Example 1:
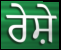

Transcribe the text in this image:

ਰੇਸ਼ੇ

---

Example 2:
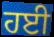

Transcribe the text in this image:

ਹਈ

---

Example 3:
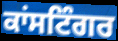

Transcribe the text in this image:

ਕਾਂਸਟਿੰਗਰ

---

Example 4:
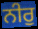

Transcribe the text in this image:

ਨੀਰੁ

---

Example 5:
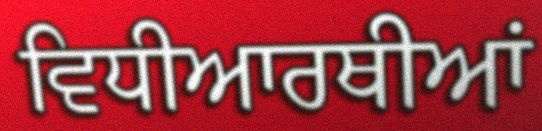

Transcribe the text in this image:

ਵਿਧੀਆਰਥੀਆਂ